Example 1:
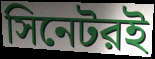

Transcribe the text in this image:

সিনেটরই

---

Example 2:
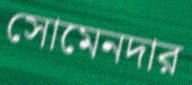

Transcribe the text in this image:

সোমেনদার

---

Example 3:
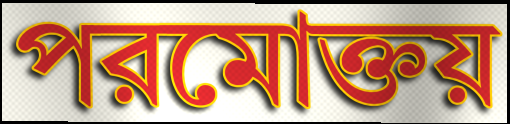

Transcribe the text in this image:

পরমোক্তয়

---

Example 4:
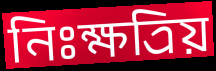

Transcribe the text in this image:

নিঃক্ষত্রিয়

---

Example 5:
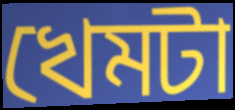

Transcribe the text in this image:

খেমটা